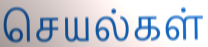
செயல்கள்